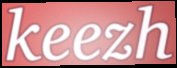
keezh